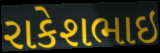
રાકેશભાઇ